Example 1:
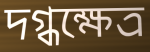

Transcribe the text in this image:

দগ্ধক্ষেত্র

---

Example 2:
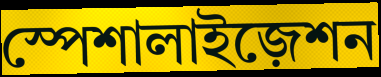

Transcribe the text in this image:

স্পেশালাইজ়েশন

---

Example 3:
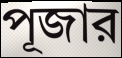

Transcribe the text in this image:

পূজার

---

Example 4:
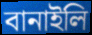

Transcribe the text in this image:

বানাইলি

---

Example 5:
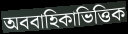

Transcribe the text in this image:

অববাহিকাভিত্তিক